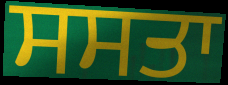
ਸਸਤਾ